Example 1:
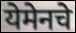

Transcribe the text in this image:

येमेनचे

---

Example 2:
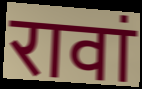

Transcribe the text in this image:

रावां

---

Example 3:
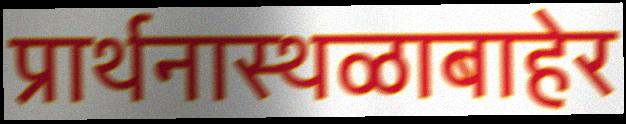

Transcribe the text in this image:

प्रार्थनास्थळाबाहेर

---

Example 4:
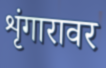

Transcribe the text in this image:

शृंगारावर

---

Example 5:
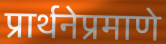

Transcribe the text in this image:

प्रार्थनेप्रमाणे